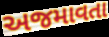
અજમાવતા